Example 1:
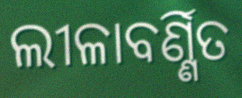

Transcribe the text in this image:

ଲୀଳାବର୍ଣ୍ଣିତ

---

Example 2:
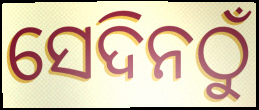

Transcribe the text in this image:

ସେଦିନଠୁଁ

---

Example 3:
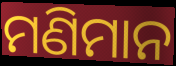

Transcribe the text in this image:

ମଣିମାନ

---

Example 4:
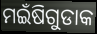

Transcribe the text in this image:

ମଇଁଷିଗୁଡାକ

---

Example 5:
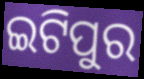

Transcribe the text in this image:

ଇଟିପୁର